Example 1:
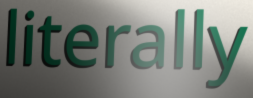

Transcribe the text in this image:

literally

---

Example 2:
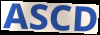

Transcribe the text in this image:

ASCD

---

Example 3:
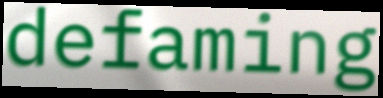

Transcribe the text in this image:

defaming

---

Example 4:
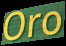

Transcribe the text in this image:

Oro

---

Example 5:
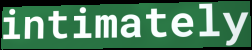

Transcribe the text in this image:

intimately